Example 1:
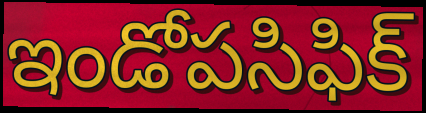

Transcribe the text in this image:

ఇండోపసిఫిక్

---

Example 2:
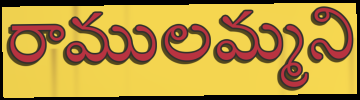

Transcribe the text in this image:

రాములమ్మని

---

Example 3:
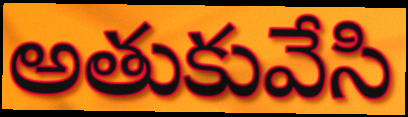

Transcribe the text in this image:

అతుకువేసి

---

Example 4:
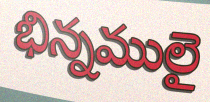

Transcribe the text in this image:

భిన్నములై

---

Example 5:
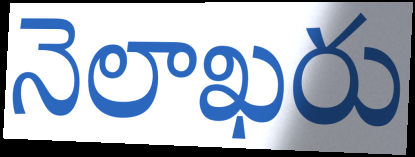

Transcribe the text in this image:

నెలాఖరు